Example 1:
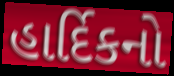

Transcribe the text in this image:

હાર્દિકનો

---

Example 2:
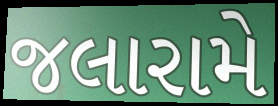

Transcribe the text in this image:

જલારામે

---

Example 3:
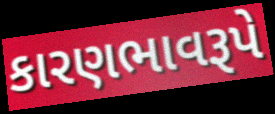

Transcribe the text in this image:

કારણભાવરૂપે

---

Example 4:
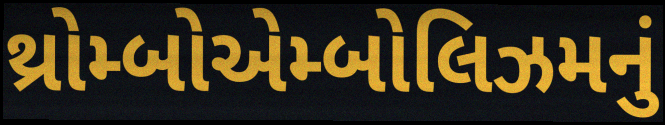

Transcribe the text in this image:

થ્રોમ્બોએમ્બોલિઝમનું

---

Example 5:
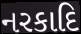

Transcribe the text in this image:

નરકાદિ